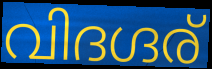
വിദഗ്ദര്